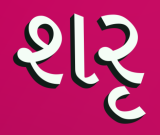
શરૃ